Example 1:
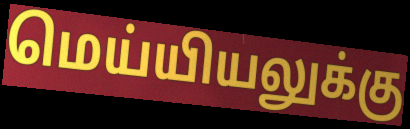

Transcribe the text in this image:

மெய்யியலுக்கு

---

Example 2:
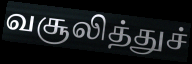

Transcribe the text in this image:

வசூலித்துச்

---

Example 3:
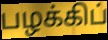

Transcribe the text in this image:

பழக்கிப்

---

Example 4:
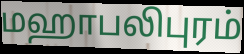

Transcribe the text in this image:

மஹாபலிபுரம்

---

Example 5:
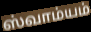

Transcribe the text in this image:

ஸ்வாம்யம்